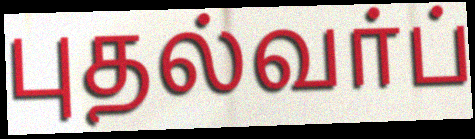
புதல்வர்ப்